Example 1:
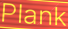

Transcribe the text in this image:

Plank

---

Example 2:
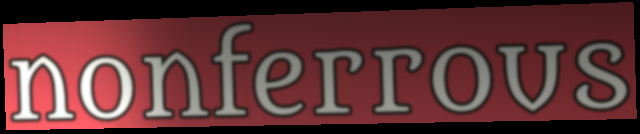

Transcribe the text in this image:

nonferrous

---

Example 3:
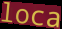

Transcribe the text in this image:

loca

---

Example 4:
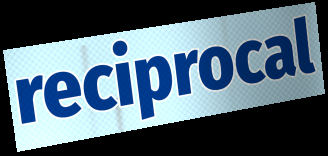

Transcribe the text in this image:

reciprocal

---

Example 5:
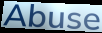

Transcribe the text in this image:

Abuse